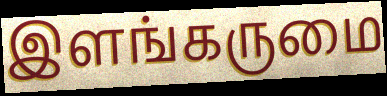
இளங்கருமை